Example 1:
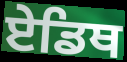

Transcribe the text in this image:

ਏਡਿਥ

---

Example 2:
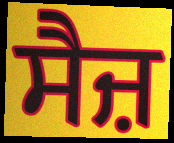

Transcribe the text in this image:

ਸੈਜ਼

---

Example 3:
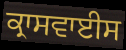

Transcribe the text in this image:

ਕ੍ਰਾਸਵਾਈਸ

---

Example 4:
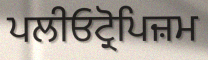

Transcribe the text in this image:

ਪਲੀਓਟ੍ਰੋਪਿਜ਼ਮ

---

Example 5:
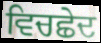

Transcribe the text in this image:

ਵਿਚਛੇਦ